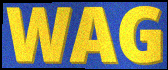
WAG